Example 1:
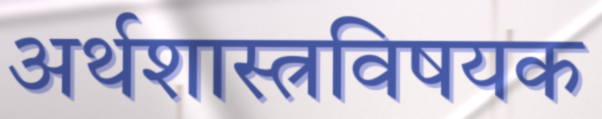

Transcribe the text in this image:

अर्थशास्त्रविषयक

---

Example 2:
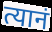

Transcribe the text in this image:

त्यानं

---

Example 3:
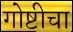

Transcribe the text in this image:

गोष्टीचा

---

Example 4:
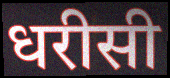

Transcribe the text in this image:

धरीसी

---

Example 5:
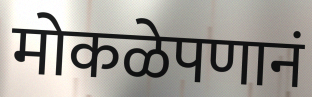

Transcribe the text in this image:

मोकळेपणानं